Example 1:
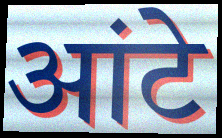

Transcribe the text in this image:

आंटे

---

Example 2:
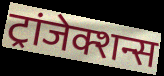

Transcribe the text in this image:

ट्रांजेक्शन्स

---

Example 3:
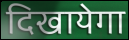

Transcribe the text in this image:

दिखायेगा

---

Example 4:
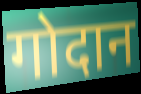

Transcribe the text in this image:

गोदान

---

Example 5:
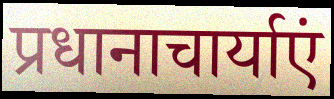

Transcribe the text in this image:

प्रधानाचार्याएं